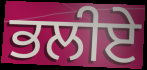
ਭਲੀਏ